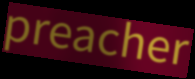
preacher